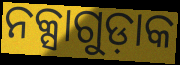
ନକ୍ସାଗୁଡ଼ାକ